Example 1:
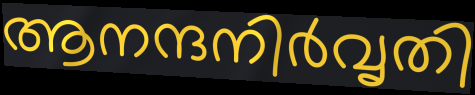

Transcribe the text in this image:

ആനന്ദനിർവൃതി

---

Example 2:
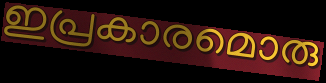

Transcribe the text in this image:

ഇപ്രകാരമൊരു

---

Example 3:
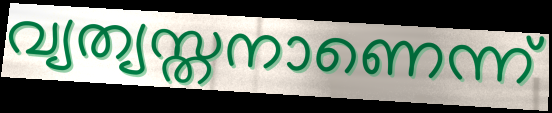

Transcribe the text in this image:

വ്യത്യസ്തനാണെന്ന്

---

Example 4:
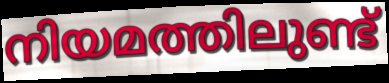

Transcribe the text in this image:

നിയമത്തിലുണ്ട്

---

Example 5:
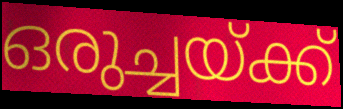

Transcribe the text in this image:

ഒരുച്ചയ്ക്ക്